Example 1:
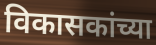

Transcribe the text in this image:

विकासकांच्या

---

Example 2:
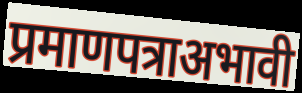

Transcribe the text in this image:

प्रमाणपत्राअभावी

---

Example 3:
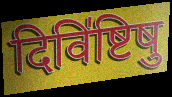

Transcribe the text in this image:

दिवि॑ष्टिषु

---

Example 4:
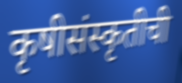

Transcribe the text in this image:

कृषीसंस्कृतीची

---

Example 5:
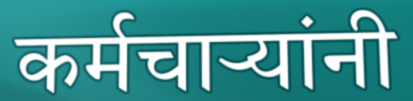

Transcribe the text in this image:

कर्मचाऱ्यांनी